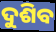
ଦୁଶିବ